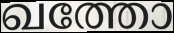
ഖത്തോ